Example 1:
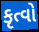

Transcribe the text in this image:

કૃત્વો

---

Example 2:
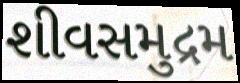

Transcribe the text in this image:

શીવસમુદ્રમ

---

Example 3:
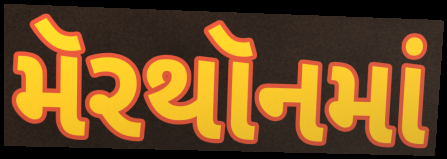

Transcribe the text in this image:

મૅરથૉનમાં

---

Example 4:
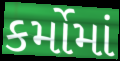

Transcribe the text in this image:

કર્મોમાં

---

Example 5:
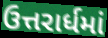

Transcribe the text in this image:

ઉત્તરાર્ધમાં